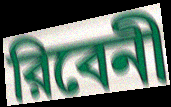
রিবেনী